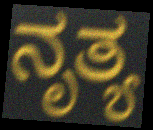
ನೃತ್ಯ